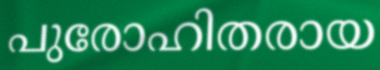
പുരോഹിതരായ